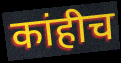
कांहीच